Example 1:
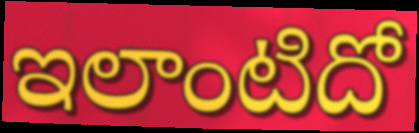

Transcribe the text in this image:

ఇలాంటిదో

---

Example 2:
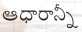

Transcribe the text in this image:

ఆధారాన్నీ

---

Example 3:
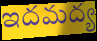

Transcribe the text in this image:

ఇదమద్య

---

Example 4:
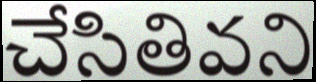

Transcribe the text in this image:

చేసితివని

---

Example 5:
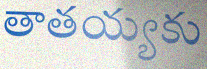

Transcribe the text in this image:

తాతయ్యకు